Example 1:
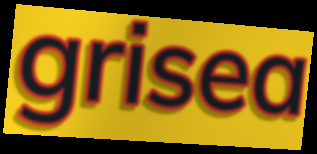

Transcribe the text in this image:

grisea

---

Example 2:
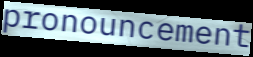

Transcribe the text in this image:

pronouncement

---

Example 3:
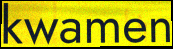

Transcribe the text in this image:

kwamen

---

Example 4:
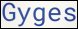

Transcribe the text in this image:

Gyges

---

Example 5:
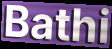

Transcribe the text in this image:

Bathi